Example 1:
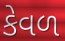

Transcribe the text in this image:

કેવળ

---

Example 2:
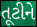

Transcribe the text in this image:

તૂટીને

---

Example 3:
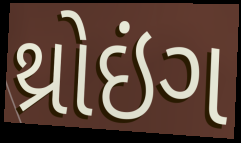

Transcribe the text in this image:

થ્રોઇંગ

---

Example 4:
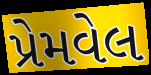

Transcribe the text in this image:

પ્રેમવેલ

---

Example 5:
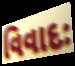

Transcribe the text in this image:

વિવાદઃ